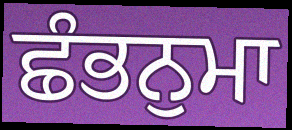
ਛੰਭਨੁਮਾ